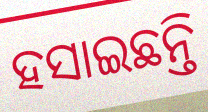
ହସାଇଛନ୍ତି